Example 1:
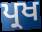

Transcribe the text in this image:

ਪ੍ਰਖ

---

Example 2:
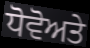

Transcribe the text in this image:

ਧੋਵੋਅਤੇ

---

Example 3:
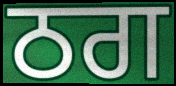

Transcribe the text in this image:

ਠਗ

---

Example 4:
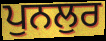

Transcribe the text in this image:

ਪੁਨਲੁਰ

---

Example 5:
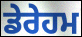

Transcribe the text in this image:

ਡੇਰੇਹਮ